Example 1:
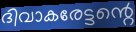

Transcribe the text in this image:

ദിവാകരേട്ടന്റെ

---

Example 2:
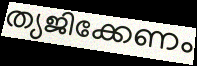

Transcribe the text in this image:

ത്യജിക്കേണം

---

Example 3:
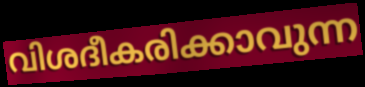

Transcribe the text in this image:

വിശദീകരിക്കാവുന്ന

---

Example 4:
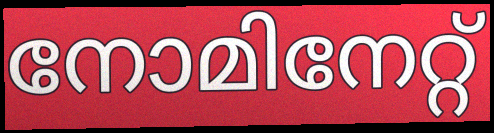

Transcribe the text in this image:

നോമിനേറ്റ്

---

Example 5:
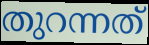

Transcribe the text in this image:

തുറന്നത്